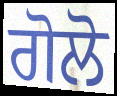
ਗੋਲੋ